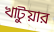
খাটুয়ার